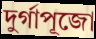
দুর্গাপূজো